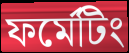
ফর্মেটিং